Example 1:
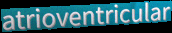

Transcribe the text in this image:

atrioventricular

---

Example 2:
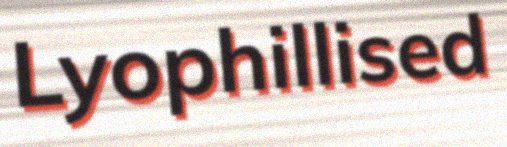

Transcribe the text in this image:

Lyophillised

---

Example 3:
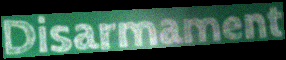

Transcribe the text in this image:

Disarmament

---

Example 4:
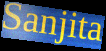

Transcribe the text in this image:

Sanjita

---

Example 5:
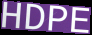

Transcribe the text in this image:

HDPE